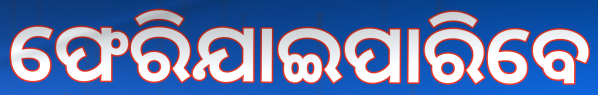
ଫେରିଯାଇପାରିବେ